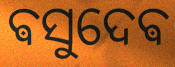
ଵସୁଦେଵ